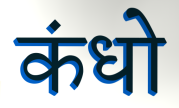
कंधो